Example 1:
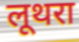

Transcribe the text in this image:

लूथरा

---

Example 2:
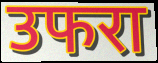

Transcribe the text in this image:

उफरा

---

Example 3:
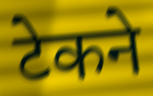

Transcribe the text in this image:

टेकने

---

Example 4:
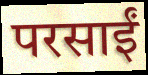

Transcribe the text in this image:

परसाईं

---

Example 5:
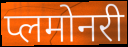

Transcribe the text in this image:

प्लमोनरी